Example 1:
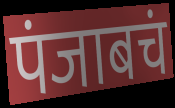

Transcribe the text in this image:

पंजाबचं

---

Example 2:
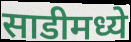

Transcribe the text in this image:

साडीमध्ये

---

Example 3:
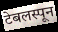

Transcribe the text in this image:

टेबलस्पून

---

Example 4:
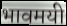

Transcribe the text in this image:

भावमयी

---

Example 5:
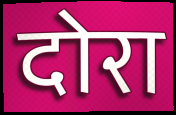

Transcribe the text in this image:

दोरा